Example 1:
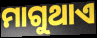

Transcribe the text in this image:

ମାଗୁଥାଏ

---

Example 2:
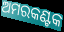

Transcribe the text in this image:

ଅମରକଣ୍ଟକ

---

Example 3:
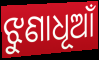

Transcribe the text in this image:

ଝୁଣାଧୂଆଁ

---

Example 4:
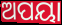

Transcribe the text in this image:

ଅପୟା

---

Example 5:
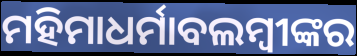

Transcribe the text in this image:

ମହିମାଧର୍ମାବଲମ୍ବୀଙ୍କର